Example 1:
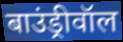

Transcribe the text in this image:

बाउंड्रीवॉल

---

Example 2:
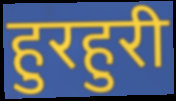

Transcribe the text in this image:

हुरहुरी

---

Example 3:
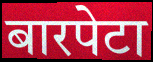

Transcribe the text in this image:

बारपेटा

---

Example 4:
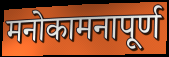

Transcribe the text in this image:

मनोकामनापूर्ण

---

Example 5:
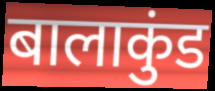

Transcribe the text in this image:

बालाकुंड